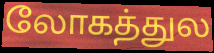
லோகத்துல